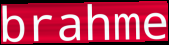
brahme